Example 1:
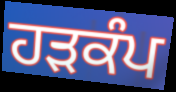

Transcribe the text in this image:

ਹਡ਼ਕੰਪ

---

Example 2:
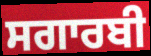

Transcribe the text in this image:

ਸਗਾਰਬੀ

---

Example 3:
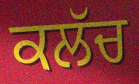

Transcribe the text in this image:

ਕਲੱਚ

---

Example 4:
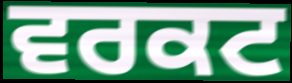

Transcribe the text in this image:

ਵਰਕਟ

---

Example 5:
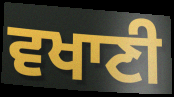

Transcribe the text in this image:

ਵਖਾਣੀ